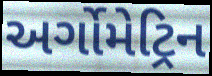
અર્ગોમેટ્રિન